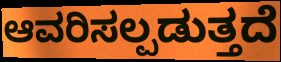
ಆವರಿಸಲ್ಪಡುತ್ತದೆ